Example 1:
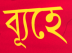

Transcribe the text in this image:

ব্যূহে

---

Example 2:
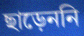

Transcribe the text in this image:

ছাড়েননি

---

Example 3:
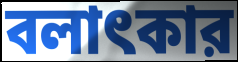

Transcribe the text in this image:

বলাৎকার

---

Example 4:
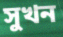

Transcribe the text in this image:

সুখন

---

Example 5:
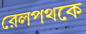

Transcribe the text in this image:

রেলপথকে